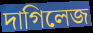
দাগিলেজ